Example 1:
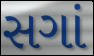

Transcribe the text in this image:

સગાં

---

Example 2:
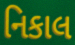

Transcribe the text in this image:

નિકાલ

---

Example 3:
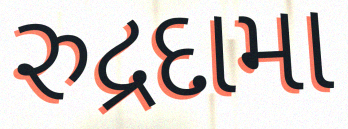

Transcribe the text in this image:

રુદ્રદામા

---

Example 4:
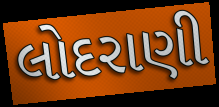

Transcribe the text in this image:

લોદરાણી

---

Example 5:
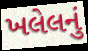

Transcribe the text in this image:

ખલેલનું